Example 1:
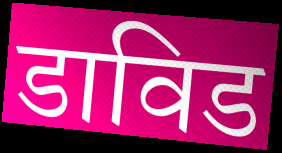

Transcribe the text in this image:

डाविड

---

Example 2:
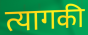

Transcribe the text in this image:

त्यागकी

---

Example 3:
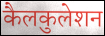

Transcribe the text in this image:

कैलकुलेशन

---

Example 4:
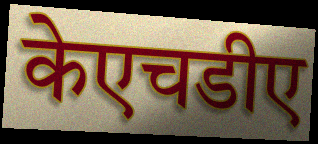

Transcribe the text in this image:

केएचडीए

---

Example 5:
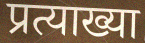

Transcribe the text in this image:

प्रत्याख्या